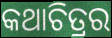
କଥାଚିତ୍ରର